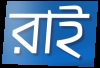
রাই